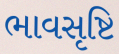
ભાવસૃષ્ટિ